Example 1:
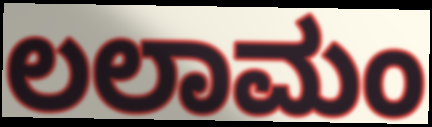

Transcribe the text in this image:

ಲಲಾಮಂ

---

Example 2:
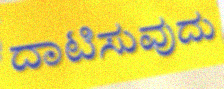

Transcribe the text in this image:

ದಾಟಿಸುವುದು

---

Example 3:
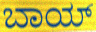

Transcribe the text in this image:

ಬಾಯ್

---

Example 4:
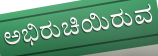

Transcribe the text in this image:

ಅಭಿರುಚಿಯಿರುವ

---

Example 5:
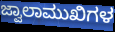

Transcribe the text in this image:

ಜ್ವಾಲಾಮುಖಿಗಳ